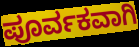
ಪೂರ್ವಕವಾಗಿ